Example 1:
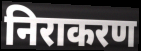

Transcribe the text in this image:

निराकरण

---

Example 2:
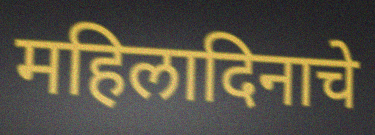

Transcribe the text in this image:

महिलादिनाचे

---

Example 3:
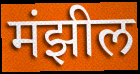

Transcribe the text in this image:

मंझील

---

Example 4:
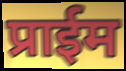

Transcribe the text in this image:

प्राईम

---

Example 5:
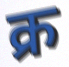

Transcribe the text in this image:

क्र